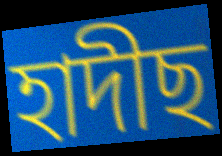
হাদীছ